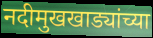
नदीमुखखाड्यांच्या